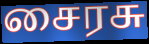
சைரசு